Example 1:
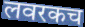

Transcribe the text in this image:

लवरकच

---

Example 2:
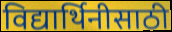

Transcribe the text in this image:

विद्यार्थिनीसाठी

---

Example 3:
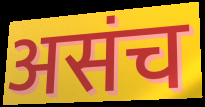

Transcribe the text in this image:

असंच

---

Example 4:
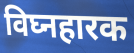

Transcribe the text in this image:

विघ्नहारक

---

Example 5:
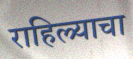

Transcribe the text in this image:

राहिल्याचा